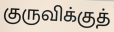
குருவிக்குத்